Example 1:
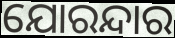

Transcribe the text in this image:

ଯୋରନ୍ଦାର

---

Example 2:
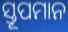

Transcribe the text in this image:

ସ୍ତୂପମାନ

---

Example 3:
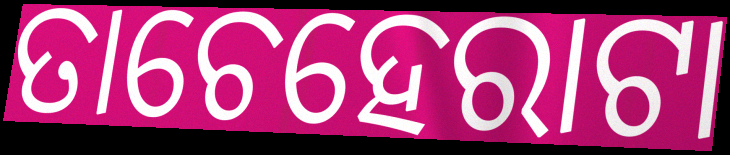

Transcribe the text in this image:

ତାଚେହେରାଟା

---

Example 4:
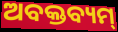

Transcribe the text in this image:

ଅବକ୍ତବ୍ୟମ୍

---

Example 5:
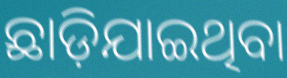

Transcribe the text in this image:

ଛାଡ଼ିଯାଇଥିବା